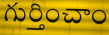
గుర్తించాం